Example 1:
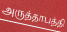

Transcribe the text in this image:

அருத்தாபத்தி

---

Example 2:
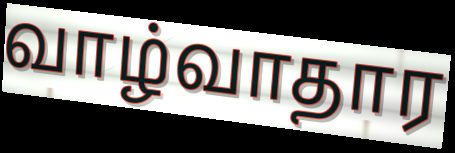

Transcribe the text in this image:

வாழ்வாதார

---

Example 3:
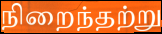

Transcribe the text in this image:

நிறைந்தற்று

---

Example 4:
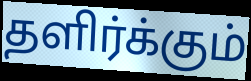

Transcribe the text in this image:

தளிர்க்கும்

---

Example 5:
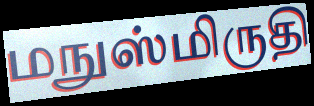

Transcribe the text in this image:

மநுஸ்மிருதி